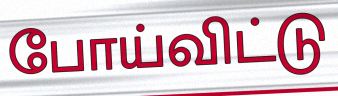
போய்விட்டு